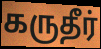
கருதீர்